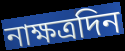
নাক্ষত্রদিন